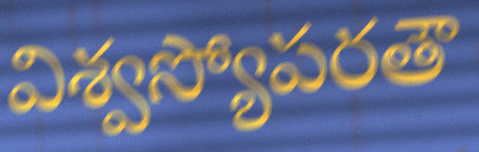
విశ్వస్యోపరతౌ